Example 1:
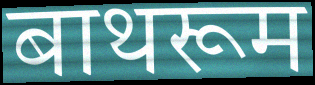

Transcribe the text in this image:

बाथरूम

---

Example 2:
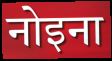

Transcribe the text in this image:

नोइना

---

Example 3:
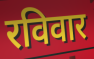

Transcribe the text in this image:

रविवार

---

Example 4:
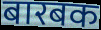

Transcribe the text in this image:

बारबक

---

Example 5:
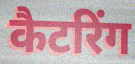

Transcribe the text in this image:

कैटरिंग